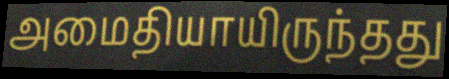
அமைதியாயிருந்தது